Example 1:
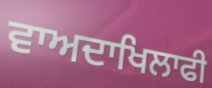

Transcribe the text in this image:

ਵਾਅਦਾਖਿਲਾਫੀ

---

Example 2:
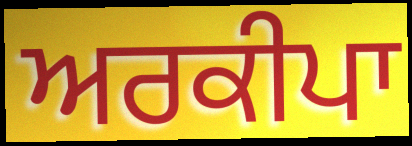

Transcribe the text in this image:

ਅਰਕੀਪਾ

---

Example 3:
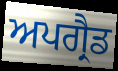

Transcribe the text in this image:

ਅਪਗ੍ਰੈਡ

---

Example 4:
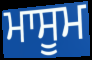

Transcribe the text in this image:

ਮਾਸੂਮ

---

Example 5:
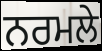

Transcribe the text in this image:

ਨਰਮਲੇ